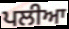
ਪਲੀਆ